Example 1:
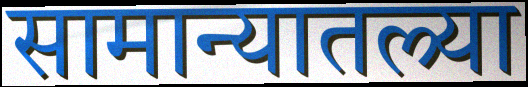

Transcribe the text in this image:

सामान्यातल्या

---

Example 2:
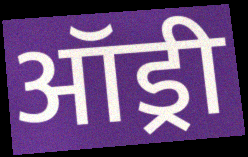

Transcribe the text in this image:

ऑड्री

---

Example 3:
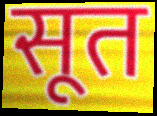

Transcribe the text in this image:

सूत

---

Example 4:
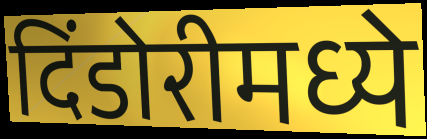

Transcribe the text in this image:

दिंडोरीमध्ये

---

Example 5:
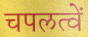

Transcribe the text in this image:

चपलत्वें